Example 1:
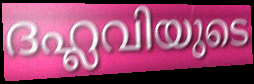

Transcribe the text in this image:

ദഹ്ലവിയുടെ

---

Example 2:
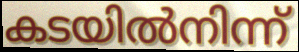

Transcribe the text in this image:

കടയിൽനിന്ന്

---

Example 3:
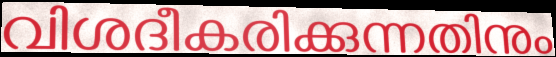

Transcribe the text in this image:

വിശദീകരിക്കുന്നതിനും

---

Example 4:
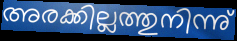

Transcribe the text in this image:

അരക്കില്ലത്തുനിന്നു്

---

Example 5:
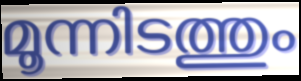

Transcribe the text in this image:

മൂന്നിടത്തും